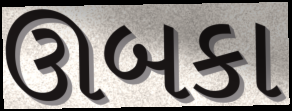
ઊબકા